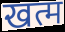
खत्‍म